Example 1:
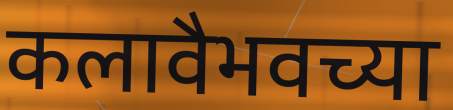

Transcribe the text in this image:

कलावैभवच्या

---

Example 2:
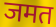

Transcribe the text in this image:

जमत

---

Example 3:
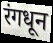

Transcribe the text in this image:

रंगधून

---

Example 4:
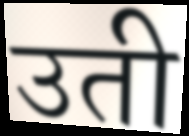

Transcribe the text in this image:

उती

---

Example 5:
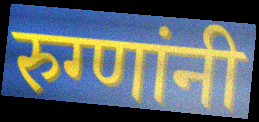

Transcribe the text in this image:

रुग्णांनी